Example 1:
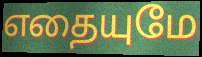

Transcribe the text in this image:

எதையுமே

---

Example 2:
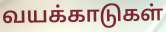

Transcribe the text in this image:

வயக்காடுகள்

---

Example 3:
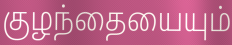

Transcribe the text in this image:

குழந்தையையும்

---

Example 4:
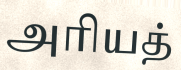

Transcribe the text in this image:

அரியத்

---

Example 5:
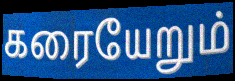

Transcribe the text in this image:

கரையேறும்